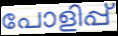
പോളിപ്പ്